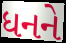
ધનને